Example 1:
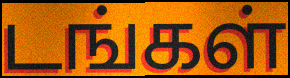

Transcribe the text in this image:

டங்கள்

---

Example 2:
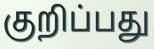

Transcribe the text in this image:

குறிப்பது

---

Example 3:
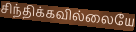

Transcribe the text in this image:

சிந்திக்கவில்லையே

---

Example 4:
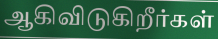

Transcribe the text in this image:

ஆகிவிடுகிறீர்கள்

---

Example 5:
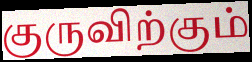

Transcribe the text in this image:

குருவிற்கும்